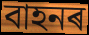
বাহনৰ